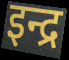
इन्द्र